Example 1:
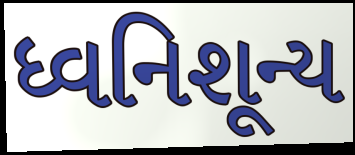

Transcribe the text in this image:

ધ્વનિશૂન્ય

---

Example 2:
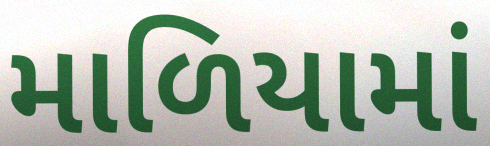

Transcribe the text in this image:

માળિયામાં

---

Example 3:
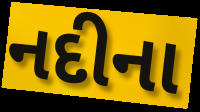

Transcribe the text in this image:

નદીના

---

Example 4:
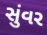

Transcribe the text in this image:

સુંવર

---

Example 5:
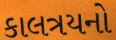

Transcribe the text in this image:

કાલત્રયનો